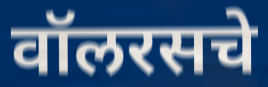
वॉलरसचे